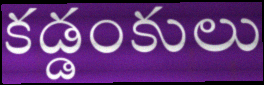
కడ్డంకులు